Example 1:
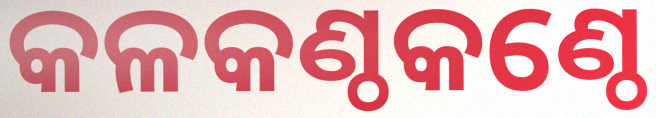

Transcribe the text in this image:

କଳକଣ୍ଠକଣ୍ଠେ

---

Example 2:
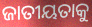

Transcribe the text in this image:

ଜାତୀୟତାକୁ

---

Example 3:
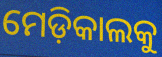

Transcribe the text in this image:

ମେଡ଼ିକାଲକୁ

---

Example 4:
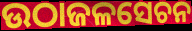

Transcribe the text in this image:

ଉଠାଜଳସେଚନ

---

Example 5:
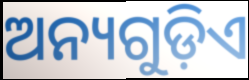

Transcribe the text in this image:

ଅନ୍ୟଗୁଡ଼ିଏ